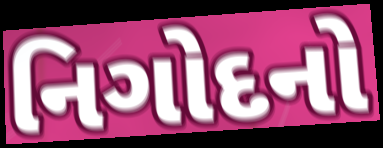
નિગોદનો